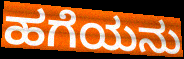
ಹಗೆಯನು